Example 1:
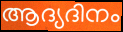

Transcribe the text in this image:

ആദ്യദിനം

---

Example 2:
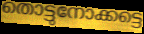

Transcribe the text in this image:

തൊട്ടുനോക്കട്ടെ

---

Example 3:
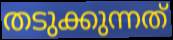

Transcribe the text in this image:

തടുക്കുന്നത്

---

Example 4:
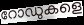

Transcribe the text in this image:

റോഡുകളെ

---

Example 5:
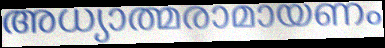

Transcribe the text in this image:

അധ്യാത്മരാമായണം